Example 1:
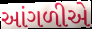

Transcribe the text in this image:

આંગળીએ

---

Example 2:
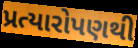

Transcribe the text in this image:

પ્રત્યારોપણથી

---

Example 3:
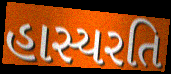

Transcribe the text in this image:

હાસ્યરતિ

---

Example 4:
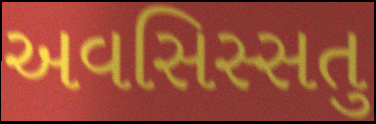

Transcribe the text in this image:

અવસિસ્સતુ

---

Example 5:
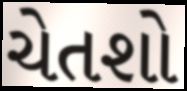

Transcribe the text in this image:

ચેતશો